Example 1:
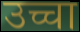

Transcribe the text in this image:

उच्चा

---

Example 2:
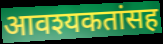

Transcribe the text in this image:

आवश्यकतांसह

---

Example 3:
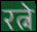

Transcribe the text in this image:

रत्ने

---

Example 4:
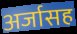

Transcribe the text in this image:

अर्जासह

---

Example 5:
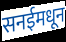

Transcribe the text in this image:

सनईमधून